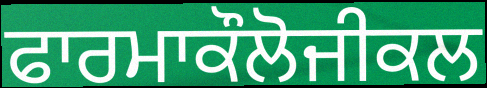
ਫਾਰਮਾਕੌਲੋਜੀਕਲ